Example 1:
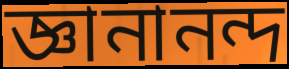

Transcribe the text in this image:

জ্ঞানানন্দ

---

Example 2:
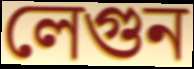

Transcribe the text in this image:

লেগুন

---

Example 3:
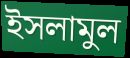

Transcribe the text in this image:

ইসলামুল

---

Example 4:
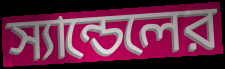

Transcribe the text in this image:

স্যান্ডেলের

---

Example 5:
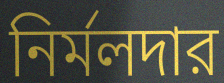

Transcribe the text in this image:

নির্মলদার